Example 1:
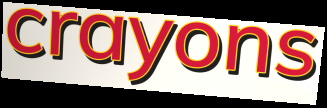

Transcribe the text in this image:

crayons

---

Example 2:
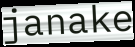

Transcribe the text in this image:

janake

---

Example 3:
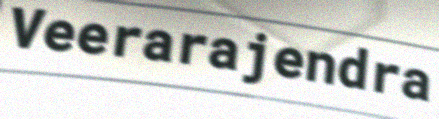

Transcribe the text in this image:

Veerarajendra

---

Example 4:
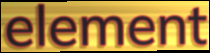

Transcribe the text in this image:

element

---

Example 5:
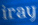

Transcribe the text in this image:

iray